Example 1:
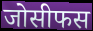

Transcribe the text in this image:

जोसीफस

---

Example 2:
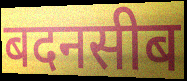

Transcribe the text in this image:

बदनसीब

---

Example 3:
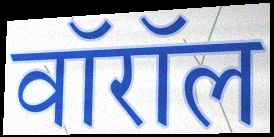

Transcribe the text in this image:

वॉरॉल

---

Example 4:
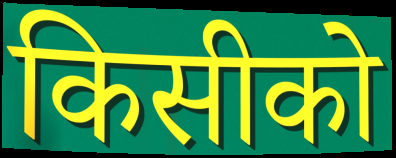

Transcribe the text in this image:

किसीको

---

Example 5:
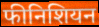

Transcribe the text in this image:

फीनिशियन